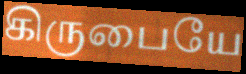
கிருபையே